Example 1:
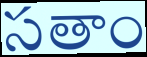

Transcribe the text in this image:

సతాం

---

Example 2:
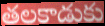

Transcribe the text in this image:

తలకాడుకు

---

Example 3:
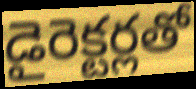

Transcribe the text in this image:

డైరెక్టర్లతో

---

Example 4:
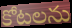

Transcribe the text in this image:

కోటలను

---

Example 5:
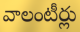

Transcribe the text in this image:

వాలంటీర్లు